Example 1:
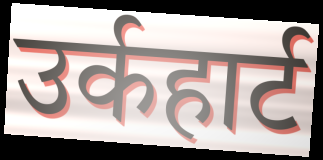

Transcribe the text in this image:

उर्कहार्ट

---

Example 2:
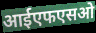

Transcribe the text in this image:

आईएफएसओ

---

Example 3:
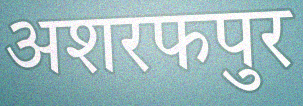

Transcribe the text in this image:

अशरफपुर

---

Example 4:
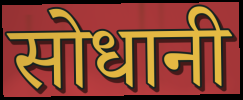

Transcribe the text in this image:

सोधानी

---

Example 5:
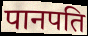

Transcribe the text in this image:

पानपति